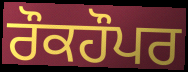
ਰੌਕਹੌਪਰ